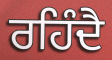
ਰਹਿੰਦੈ